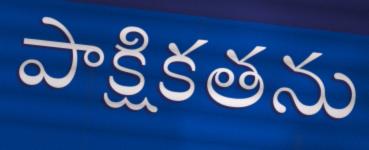
పాక్షికతను